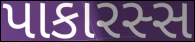
પાકારસ્સ